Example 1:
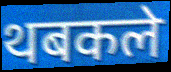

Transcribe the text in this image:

थबकले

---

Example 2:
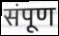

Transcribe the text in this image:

संपूण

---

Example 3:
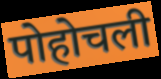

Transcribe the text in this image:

पोहोचली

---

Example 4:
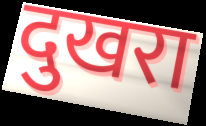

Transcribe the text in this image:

दुखरा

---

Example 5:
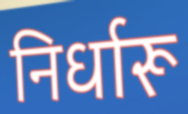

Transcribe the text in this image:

निर्धारू